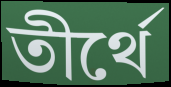
তীর্থে